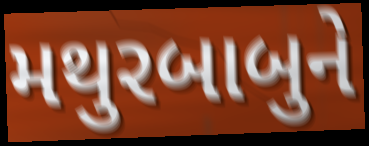
મથુરબાબુને